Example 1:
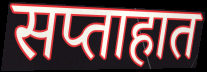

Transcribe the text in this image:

सप्ताहात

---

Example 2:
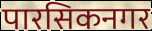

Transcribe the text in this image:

पारसिकनगर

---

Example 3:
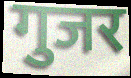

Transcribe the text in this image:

गुजर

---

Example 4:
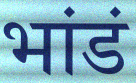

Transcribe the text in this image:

भांडं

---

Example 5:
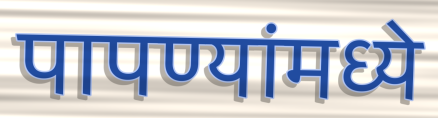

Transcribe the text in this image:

पापण्यांमध्ये